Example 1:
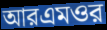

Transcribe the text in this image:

আরএমওর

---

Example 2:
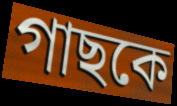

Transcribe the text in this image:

গাছকে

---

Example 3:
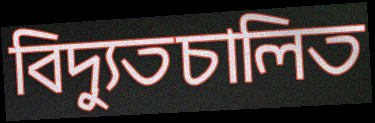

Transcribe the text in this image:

বিদ্যুতচালিত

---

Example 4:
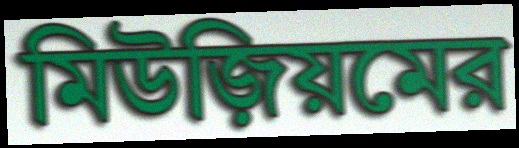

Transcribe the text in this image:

মিউজ়িয়মের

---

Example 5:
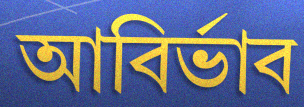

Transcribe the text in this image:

আবির্ভাব